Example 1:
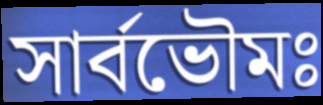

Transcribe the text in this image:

সার্বভৌমঃ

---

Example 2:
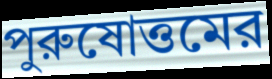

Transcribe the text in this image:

পুরুষোত্তমের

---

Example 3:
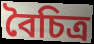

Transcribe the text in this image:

বৈচিত্র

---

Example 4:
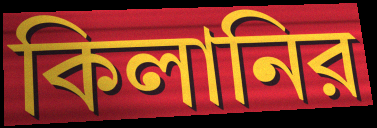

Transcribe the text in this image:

কিলানির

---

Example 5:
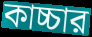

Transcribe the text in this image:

কাচ্চার